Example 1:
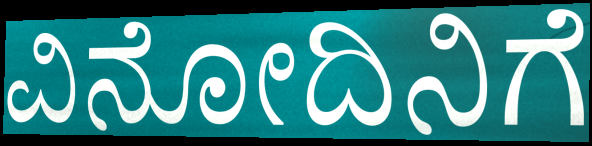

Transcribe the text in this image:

ವಿನೋದಿನಿಗೆ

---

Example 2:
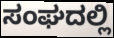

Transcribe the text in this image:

ಸಂಘದಲ್ಲಿ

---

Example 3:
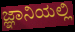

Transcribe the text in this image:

ಜ್ಞಾನಿಯಲ್ಲಿ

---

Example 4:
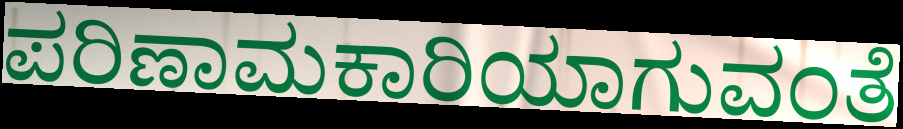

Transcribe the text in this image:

ಪರಿಣಾಮಕಾರಿಯಾಗುವಂತೆ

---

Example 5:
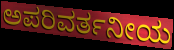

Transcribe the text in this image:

ಅಪರಿವರ್ತನೀಯ